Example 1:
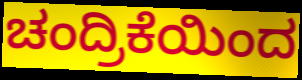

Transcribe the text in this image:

ಚಂದ್ರಿಕೆಯಿಂದ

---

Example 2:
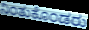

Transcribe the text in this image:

ನಿಂತುಕೊಂಡರು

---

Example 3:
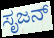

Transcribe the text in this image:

ಸೃಜನ್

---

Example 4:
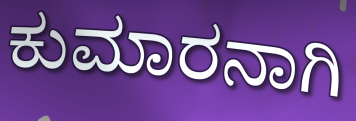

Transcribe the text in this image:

ಕುಮಾರನಾಗಿ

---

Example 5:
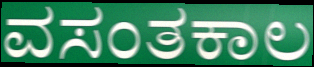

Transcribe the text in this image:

ವಸಂತಕಾಲ